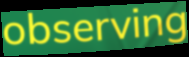
observing